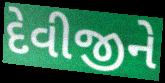
દેવીજીને